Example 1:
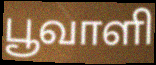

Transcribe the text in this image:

பூவாளி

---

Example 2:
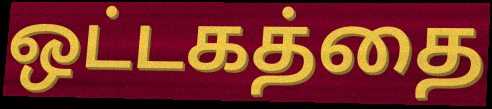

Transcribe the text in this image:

ஒட்டகத்தை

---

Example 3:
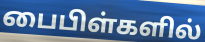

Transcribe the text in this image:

பைபிள்களில்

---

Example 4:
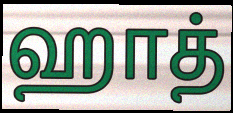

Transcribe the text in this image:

ஹாத்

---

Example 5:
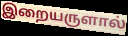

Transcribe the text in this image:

இறையருளால்